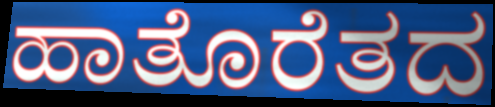
ಹಾತೊರೆತದ